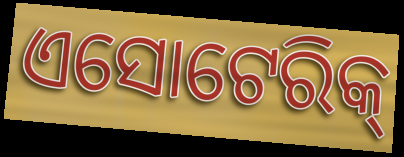
ଏସୋଟେରିକ୍